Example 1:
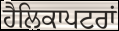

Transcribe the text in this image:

ਹੈਲਿਕਾਪਟਰਾਂ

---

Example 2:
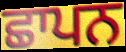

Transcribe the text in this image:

ਛਾਪਨ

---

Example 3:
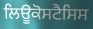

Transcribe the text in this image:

ਲਿਊਕੋਸਟੈਸਿਸ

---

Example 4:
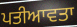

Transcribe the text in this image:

ਪਤੀਆਵਤਾ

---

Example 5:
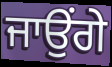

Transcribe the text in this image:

ਜਾਉਂਗੇ